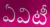
ఏవిటీ